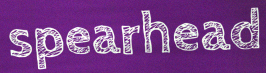
spearhead